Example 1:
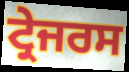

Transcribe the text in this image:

ਟ੍ਰੇਜਰਸ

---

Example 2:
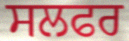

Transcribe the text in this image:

ਸਲਫਰ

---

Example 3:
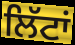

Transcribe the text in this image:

ਲਿੱਟਾਂ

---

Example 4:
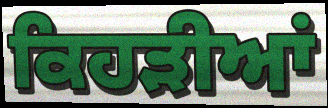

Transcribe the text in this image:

ਕਿਹੜੀਆਂ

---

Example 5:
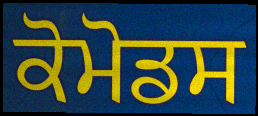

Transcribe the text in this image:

ਕੋਮੋਡਸ